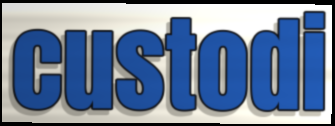
custodi